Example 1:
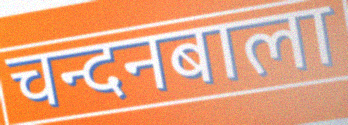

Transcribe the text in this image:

चन्दनबाला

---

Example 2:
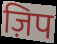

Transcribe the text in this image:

ज़िप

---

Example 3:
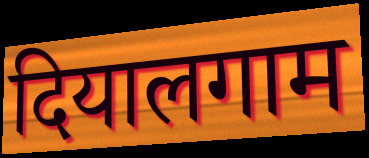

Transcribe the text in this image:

दियालगाम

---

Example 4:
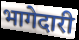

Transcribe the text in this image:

भागेदारी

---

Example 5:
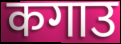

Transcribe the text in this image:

कगाउ